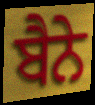
ਬੈਨੇ